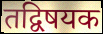
तद्विषयक